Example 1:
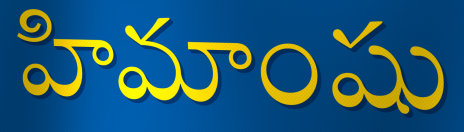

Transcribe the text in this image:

హిమాంషు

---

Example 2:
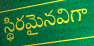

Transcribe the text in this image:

స్థిరమైనవిగా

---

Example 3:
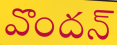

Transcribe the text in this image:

వొందన్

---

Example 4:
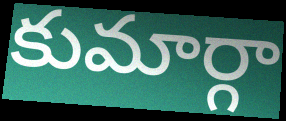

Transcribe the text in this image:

కుమార్గా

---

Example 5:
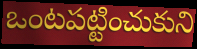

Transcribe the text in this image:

ఒంటపట్టించుకుని